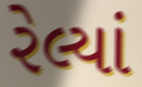
રેલ્યાં